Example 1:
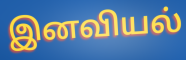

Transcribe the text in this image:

இனவியல்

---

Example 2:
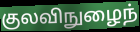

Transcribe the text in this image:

குலவிநுழைந்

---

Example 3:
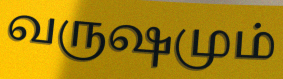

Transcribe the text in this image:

வருஷமும்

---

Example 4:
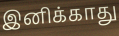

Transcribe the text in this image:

இனிக்காது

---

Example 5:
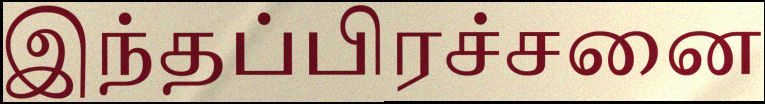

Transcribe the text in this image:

இந்தப்பிரச்சனை